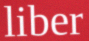
liber